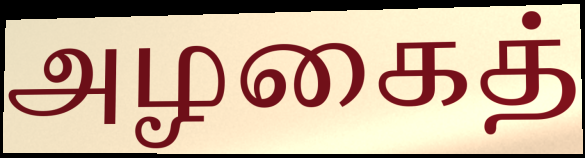
அழகைத்